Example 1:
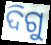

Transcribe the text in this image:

ଦିଗୁ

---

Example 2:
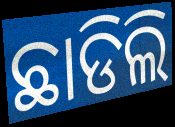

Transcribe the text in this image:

ଛାଡିଲି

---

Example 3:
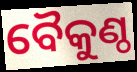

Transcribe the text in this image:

ବୈକୁଣ୍ଠ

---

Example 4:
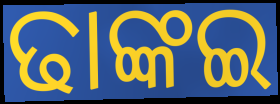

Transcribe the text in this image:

ଢାଙ୍କଇ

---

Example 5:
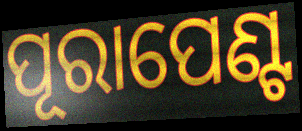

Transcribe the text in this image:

ପୂରାପେଣ୍ଟ